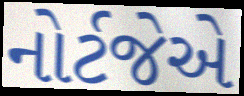
નોર્ટજેએ